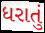
ધરાતું